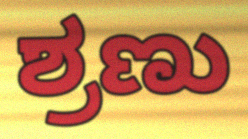
ಶ್ರಣು